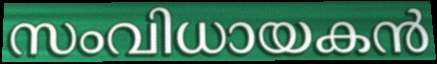
സംവിധായകൻ